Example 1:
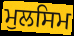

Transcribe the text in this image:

ਮੁਲਸਿਮ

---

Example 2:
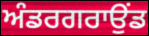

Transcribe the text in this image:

ਅੰਡਰਗਰਾਉਂਡ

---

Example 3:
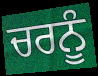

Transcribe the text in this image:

ਚਰਨੂੰ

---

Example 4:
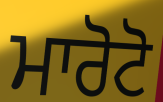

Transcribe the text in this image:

ਮਾਰੋਟੋ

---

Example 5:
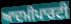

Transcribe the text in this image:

ਆਦਮੀਪਾਰਟੀ